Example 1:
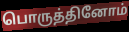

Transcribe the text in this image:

பொருத்தினோம்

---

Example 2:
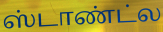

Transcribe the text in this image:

ஸ்டாண்ட்ல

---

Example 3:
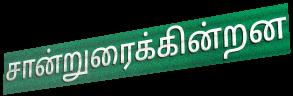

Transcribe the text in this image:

சான்றுரைக்கின்றன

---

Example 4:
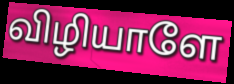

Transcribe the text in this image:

விழியாளே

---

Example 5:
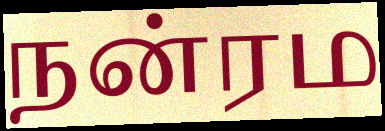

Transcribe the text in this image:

நன்ரம